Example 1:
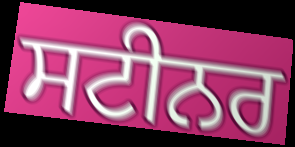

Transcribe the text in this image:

ਸਟੀਨਰ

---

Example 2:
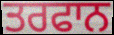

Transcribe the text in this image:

ਤਰਫਾਨ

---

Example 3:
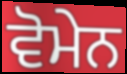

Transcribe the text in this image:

ਵੋਮੇਨ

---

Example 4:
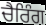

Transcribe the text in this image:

ਚੈਰਿੰਗ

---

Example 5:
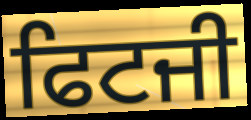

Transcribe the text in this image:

ਫਿਟਜੀ